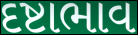
દષ્ટાભાવ